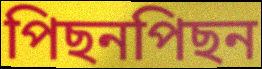
পিছনপিছন